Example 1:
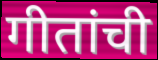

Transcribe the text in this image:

गीतांची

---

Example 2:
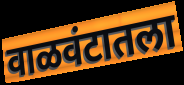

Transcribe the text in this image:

वाळवंटातला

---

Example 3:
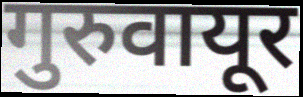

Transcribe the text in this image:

गुरुवायूर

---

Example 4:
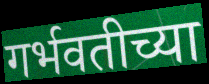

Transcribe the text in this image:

गर्भवतीच्या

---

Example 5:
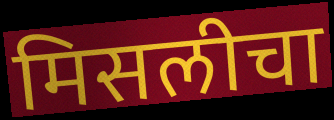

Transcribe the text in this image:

मिसलीचा